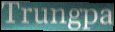
Trungpa